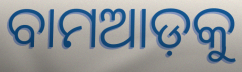
ବାମଆଡ଼କୁ